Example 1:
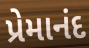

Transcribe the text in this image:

પ્રેમાનંદ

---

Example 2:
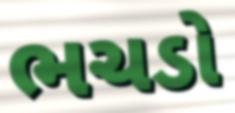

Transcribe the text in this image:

ભચડો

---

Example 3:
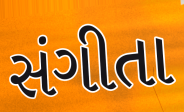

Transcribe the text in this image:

સંગીતા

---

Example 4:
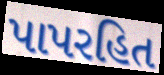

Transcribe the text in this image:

પાપરહિત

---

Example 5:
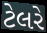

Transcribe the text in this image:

ટેલરે